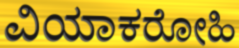
ವಿಯಾಕರೋಹಿ